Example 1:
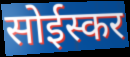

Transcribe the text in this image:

सोईस्कर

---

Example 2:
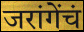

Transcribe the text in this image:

जरांगेंचं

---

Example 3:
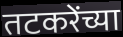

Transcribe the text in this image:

तटकरेंच्या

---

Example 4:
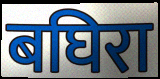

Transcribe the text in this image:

बघिरा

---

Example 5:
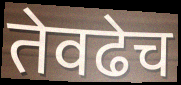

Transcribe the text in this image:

तेवढेच